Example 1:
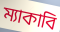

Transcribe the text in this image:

ম্যাকাবি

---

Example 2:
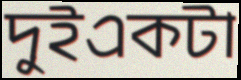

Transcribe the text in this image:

দুইএকটা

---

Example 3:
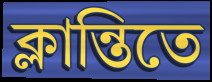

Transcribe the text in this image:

ক্লান্তিতে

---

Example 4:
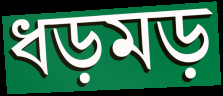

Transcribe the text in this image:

ধড়মড়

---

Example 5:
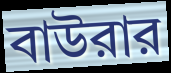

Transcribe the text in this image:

বাউরার